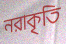
নরাকৃতি